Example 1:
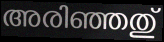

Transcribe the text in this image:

അരിഞ്ഞതു്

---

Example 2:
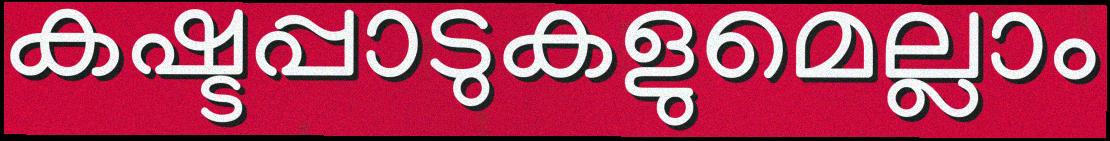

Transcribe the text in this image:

കഷ്ടപ്പാടുകളുമെല്ലാം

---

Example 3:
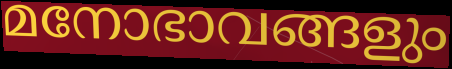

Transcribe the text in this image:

മനോഭാവങ്ങളും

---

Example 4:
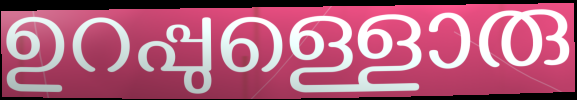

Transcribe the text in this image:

ഉറപ്പുള്ളൊരു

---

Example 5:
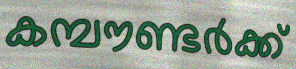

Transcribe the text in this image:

കമ്പൗണ്ടർക്ക്